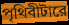
পৃথিবীটারে